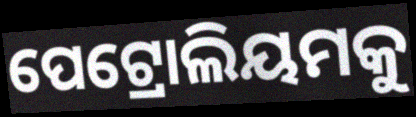
ପେଟ୍ରୋଲିୟମକୁ